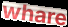
whare